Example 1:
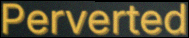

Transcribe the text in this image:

Perverted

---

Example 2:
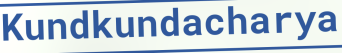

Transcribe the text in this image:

Kundkundacharya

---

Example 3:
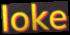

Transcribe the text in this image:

loke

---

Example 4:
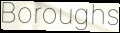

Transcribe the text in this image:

Boroughs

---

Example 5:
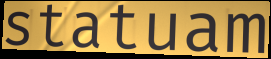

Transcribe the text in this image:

statuam